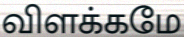
விளக்கமே